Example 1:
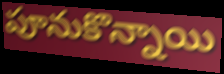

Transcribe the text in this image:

పూనుకొన్నాయి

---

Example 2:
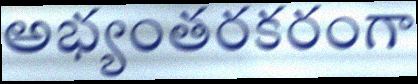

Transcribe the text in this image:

అభ్యంతరకరంగా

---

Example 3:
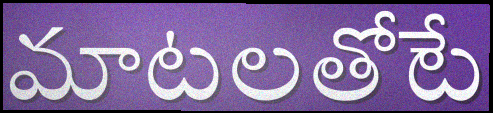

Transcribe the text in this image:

మాటలతోటే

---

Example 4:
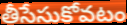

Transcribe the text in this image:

తీసేసుకోవటం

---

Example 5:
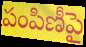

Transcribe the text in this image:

పంపిణీపై